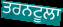
ਤਰਨਟੂਲਾ